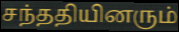
சந்ததியினரும்